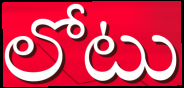
లోటు